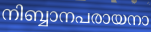
നിബ്ബാനപരായനാ